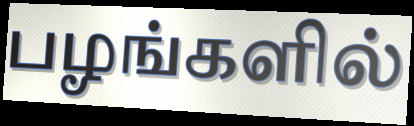
பழங்களில்